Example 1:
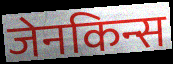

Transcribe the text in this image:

जेनकिन्स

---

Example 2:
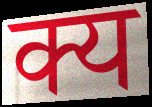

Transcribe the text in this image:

क्य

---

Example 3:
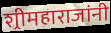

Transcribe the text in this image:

श्रीमहाराजांनी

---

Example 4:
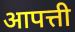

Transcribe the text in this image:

आपत्ती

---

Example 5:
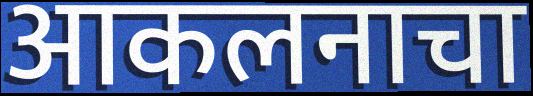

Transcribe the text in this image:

आकलनाचा